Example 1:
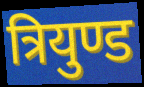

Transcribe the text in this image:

त्रियुण्ड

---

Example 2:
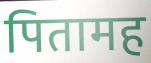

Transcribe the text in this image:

पितामह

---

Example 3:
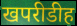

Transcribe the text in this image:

खपरीडीह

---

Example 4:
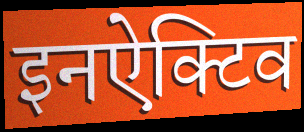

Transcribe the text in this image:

इनऐक्टिव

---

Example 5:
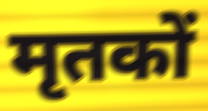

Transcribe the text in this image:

मृतकों